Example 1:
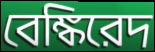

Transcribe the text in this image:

বেঙ্কিরেদ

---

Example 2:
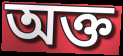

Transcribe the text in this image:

অক্ত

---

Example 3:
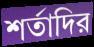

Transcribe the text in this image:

শর্তাদির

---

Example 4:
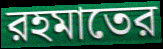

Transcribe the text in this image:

রহমাতের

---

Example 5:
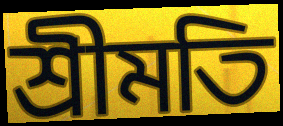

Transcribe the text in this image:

শ্রীমতি